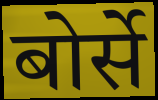
बोर्से